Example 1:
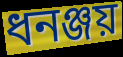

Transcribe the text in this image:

ধনঞ্জয়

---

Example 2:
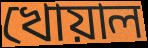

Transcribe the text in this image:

খোয়াল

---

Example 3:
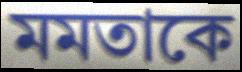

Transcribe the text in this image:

মমতাকে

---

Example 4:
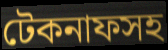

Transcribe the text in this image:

টেকনাফসহ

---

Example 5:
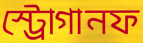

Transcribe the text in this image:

স্ট্রোগানফ